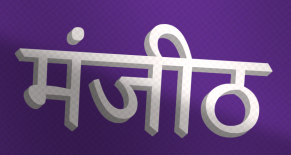
मंजीठ